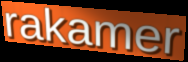
rakamer